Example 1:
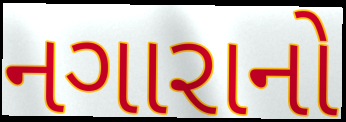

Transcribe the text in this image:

નગારાનો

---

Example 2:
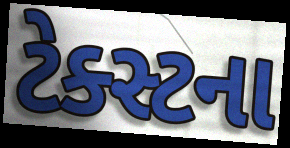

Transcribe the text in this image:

ટેક્સ્ટના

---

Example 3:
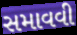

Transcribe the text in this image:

સમાવવી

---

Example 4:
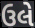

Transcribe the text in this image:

ઉલે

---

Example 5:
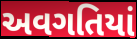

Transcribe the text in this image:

અવગતિયાં